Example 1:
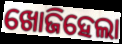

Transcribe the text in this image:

ଖୋଜିହେଲା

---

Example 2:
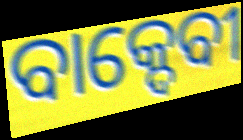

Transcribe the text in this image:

ବାକ୍ଦେବୀ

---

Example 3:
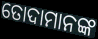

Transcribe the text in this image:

ତୋଦାମାନଙ୍କ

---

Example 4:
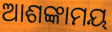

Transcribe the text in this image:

ଆଶଙ୍କାମୟ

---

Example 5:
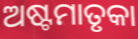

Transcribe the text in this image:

ଅଷ୍ଟମାତୃକା